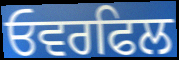
ਓਵਰਫਿਲ